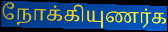
நோக்கியுணர்க